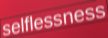
selflessness